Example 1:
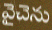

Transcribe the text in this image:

వైచెను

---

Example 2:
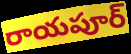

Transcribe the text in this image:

రాయపూర్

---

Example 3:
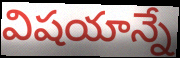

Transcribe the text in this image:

విషయాన్నే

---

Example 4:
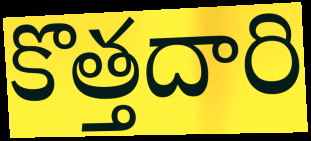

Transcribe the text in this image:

కొత్తదారి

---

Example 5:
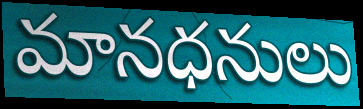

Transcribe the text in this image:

మానధనులు